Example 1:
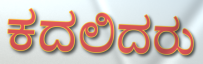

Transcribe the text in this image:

ಕದಲಿದರು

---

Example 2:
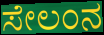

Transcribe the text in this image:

ಸೇಲಂನ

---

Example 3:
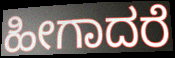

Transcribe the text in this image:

ಹೀಗಾದರೆ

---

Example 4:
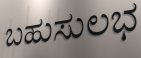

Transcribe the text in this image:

ಬಹುಸುಲಭ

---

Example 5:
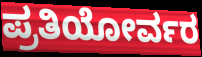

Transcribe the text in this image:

ಪ್ರತಿಯೋರ್ವರ